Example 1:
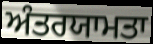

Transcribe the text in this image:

ਅੰਤਰਯਾਮਤਾ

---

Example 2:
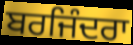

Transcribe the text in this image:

ਬਰਜਿੰਦਰਾ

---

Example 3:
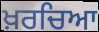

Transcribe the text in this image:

ਖ਼ਰਚਿਆ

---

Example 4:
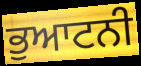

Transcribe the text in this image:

ਭੁਆਟਨੀ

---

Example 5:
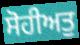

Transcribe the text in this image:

ਸੋਹੀਅਤੁ